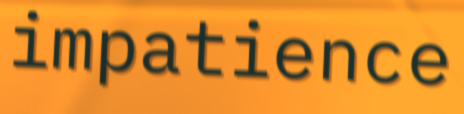
impatience